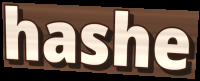
hashe